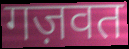
गज़वत